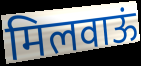
मिलवाऊं